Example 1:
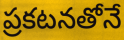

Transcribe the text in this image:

ప్రకటనతోనే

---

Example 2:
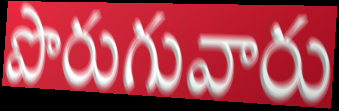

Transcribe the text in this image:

పొరుగువారు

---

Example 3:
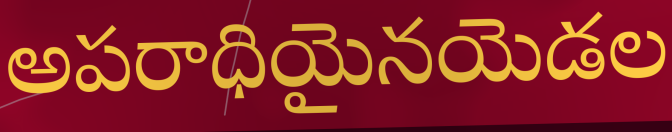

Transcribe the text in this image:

అపరాధియైనయెడల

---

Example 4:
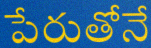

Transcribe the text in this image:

పేరుతోనే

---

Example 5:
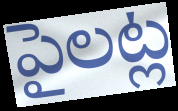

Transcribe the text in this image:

పైలట్ల